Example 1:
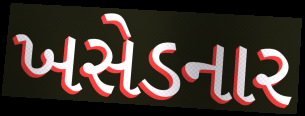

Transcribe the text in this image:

ખસેડનાર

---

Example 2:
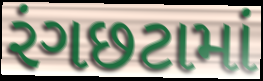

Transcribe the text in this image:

રંગછટામાં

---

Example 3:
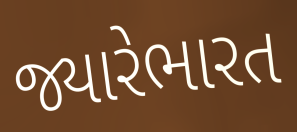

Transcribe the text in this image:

જ્યારેભારત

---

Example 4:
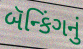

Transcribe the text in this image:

બૅન્કિંગનું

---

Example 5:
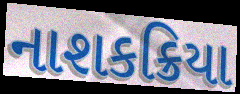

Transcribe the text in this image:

નાશકક્રિયા